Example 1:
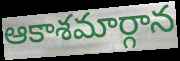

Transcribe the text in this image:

ఆకాశమార్గాన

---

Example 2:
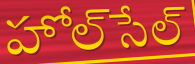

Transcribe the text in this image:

హోల్‌సేల్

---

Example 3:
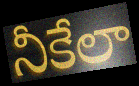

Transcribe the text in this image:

నీకేలా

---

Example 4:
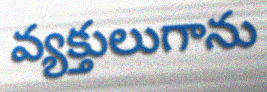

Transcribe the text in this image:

వ్యక్తులుగాను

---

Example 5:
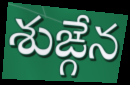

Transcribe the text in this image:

శుఙ్గేన